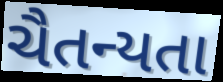
ચૈતન્યતા